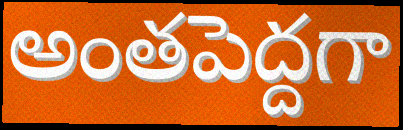
అంతపెద్దగా